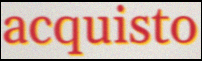
acquisto